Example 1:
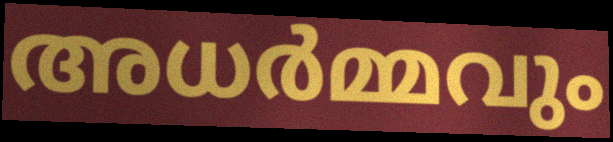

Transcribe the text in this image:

അധർമ്മവും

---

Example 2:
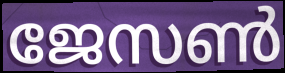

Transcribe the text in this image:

ജേസൺ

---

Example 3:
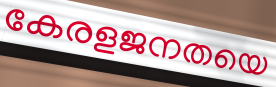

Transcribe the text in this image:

കേരളജനതയെ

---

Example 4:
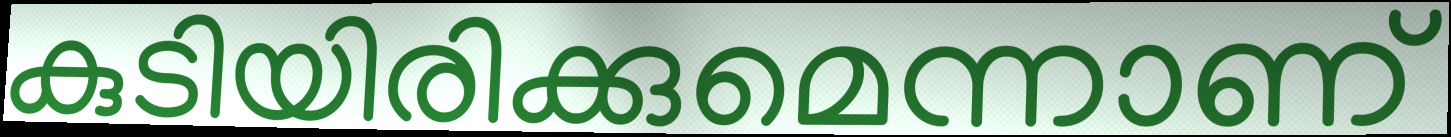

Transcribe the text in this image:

കുടിയിരിക്കുമെന്നാണ്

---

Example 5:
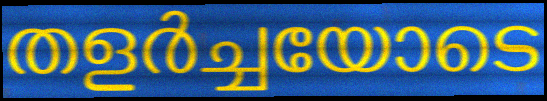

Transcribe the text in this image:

തളർച്ചയോടെ